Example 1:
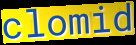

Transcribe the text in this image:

clomid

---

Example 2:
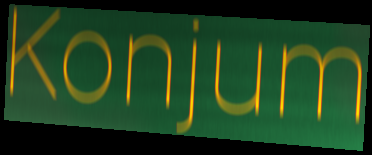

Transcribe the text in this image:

Konjum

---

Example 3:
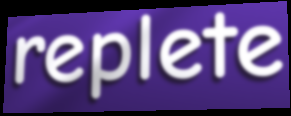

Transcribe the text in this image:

replete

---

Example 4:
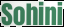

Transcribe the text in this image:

Sohini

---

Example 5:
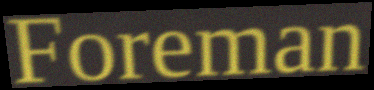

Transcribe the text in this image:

Foreman